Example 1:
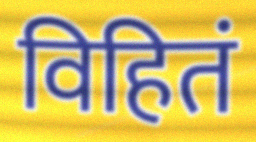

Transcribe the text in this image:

विहितं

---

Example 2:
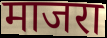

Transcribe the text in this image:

माजरा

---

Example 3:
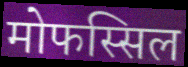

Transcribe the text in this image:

मोफस्सिल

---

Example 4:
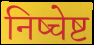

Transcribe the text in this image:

निष्चेष्ट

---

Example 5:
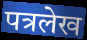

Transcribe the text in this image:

पत्रलेख